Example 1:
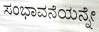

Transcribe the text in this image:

ಸಂಭಾವನೆಯನ್ನೇ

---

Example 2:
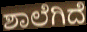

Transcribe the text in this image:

ಶಾಲೆಗಿದೆ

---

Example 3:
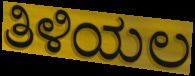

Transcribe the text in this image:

ತಿಳಿಯಲ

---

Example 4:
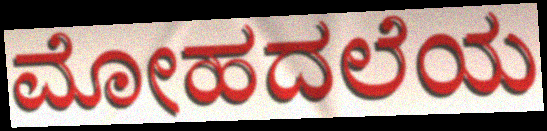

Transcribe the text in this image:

ಮೋಹದಲೆಯ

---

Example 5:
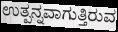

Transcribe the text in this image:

ಉತ್ಪನ್ನವಾಗುತ್ತಿರುವ